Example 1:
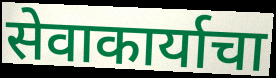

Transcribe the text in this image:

सेवाकार्याचा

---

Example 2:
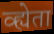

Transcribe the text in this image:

व्ह्येता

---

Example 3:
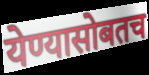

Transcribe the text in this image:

येण्यासोबतच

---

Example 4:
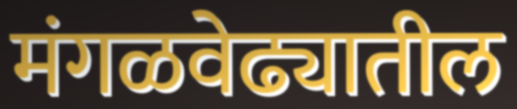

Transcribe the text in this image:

मंगळवेढ्यातील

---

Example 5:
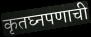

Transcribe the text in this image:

कृतघ्नपणाची